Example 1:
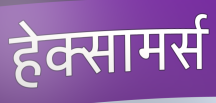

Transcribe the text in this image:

हेक्सामर्स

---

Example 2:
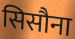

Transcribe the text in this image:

सिसौना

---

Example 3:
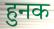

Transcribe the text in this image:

हुनक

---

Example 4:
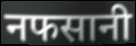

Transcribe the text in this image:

नफसानी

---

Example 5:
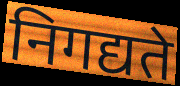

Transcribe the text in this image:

निगद्यते